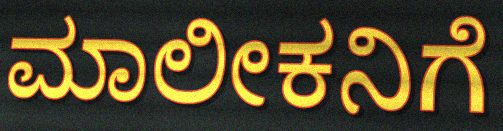
ಮಾಲೀಕನಿಗೆ